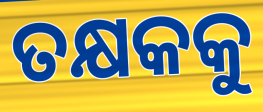
ତକ୍ଷକକୁ